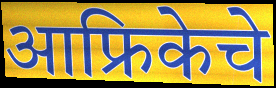
आफ्रिकेचे